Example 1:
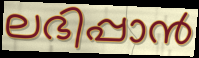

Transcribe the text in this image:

ലഭിപ്പാൻ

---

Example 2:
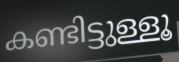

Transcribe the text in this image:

കണ്ടിട്ടുള്ളൂ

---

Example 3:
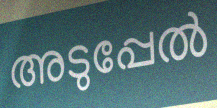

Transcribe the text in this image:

അടുപ്പേൽ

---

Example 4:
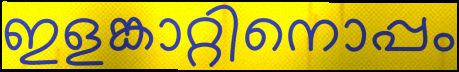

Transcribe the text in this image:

ഇളങ്കാറ്റിനൊപ്പം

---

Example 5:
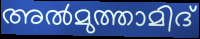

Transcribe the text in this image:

അൽമുത്താമിദ്